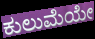
ಕುಲುಮೆಯೇ